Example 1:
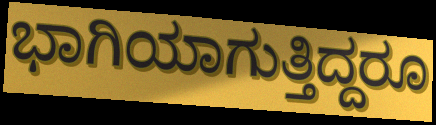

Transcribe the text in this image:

ಭಾಗಿಯಾಗುತ್ತಿದ್ದರೂ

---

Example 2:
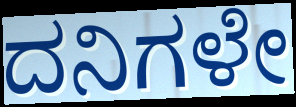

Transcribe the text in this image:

ದನಿಗಳೇ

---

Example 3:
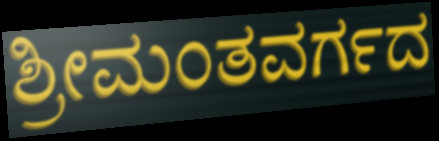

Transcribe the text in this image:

ಶ್ರೀಮಂತವರ್ಗದ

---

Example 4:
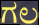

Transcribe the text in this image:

ಗಲ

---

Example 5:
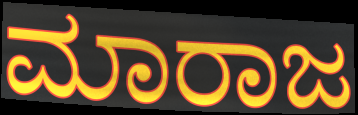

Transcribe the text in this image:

ಮಾರಾಜ